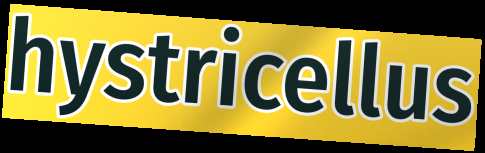
hystricellus